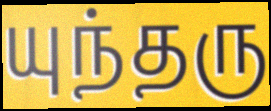
யுந்தரு